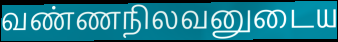
வண்ணநிலவனுடைய